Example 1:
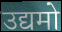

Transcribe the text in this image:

उद्यमो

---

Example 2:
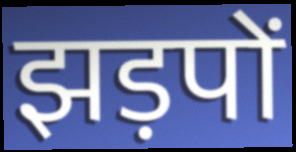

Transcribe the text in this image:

झड़पों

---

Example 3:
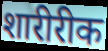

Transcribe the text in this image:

शारीरीक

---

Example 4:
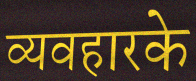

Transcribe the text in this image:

व्यवहारके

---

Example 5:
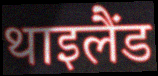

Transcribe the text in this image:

थाइलैंड